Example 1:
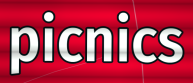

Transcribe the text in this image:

picnics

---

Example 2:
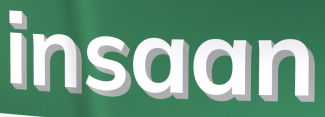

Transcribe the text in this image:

insaan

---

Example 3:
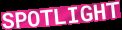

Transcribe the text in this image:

SPOTLIGHT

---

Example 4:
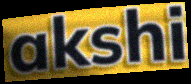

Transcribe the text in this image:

akshi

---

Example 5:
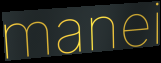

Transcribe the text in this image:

manei